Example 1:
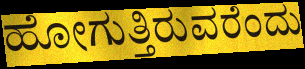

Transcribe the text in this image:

ಹೋಗುತ್ತಿರುವರೆಂದು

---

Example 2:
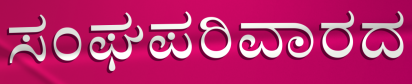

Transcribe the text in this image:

ಸಂಘಪರಿವಾರದ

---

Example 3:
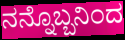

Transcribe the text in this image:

ನನ್ನೊಬ್ಬನಿಂದ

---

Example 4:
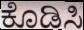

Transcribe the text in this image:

ಕೊಡಿಸಿ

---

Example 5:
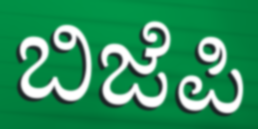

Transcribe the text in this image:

ಬಿಜೆಪಿ